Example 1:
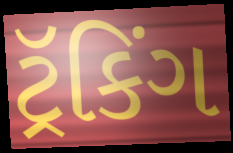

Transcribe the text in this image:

ટ્રૅકિંગ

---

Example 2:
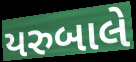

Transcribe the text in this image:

યરુબાલે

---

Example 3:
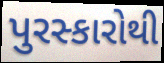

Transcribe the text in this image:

પુરસ્કારોથી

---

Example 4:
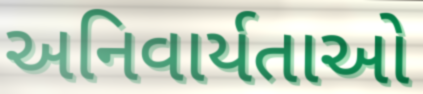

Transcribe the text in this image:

અનિવાર્યતાઓ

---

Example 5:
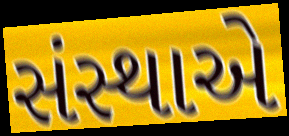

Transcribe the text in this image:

સંસ્થાએ